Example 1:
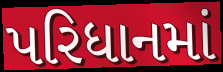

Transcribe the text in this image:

પરિધાનમાં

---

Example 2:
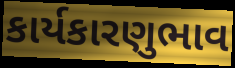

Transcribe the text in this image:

કાર્યકારણુભાવ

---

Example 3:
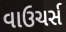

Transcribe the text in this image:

વાઉચર્સ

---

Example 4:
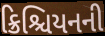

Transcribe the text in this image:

ક્રિશ્ચિયનની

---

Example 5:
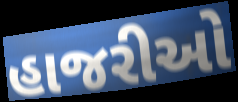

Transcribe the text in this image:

હાજરીઓ